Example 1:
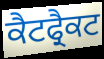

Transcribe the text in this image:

ਕੈਟਫ੍ਰੈਕਟ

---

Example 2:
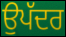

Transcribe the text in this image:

ਉਪੱਦਰ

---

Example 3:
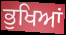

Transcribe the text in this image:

ਭੁਖਿਆਂ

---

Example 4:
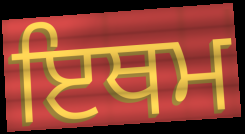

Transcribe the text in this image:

ਇਥਮ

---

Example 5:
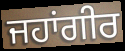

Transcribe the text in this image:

ਜਹਾਂਗੀਰ